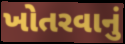
ખોતરવાનું